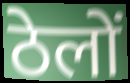
ठेलों